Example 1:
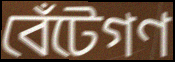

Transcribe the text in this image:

বেঁটেগণ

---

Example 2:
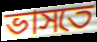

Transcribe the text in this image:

ভাসতে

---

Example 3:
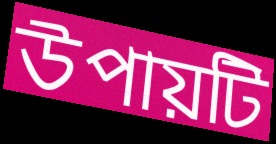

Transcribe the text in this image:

উপায়টি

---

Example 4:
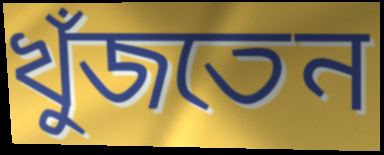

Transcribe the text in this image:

খুঁজতেন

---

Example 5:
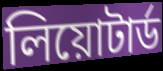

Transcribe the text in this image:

লিয়োটার্ড